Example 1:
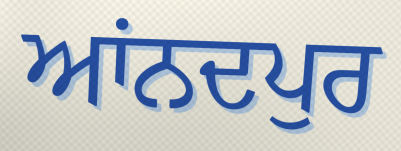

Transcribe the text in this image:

ਆਂਨਦਪੁਰ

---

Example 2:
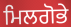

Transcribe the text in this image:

ਮਿਲਗੋਭੇ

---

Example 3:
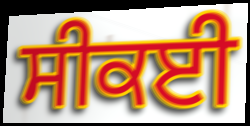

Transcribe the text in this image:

ਸੀਕਈ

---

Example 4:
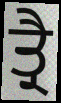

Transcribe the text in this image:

ਤ੍ਰੈ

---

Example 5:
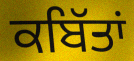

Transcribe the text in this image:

ਕਬਿੱਤਾਂ